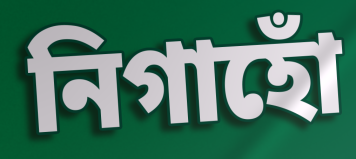
নিগাহোঁ